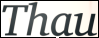
Thau